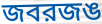
জবরজঙ